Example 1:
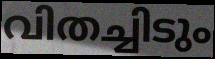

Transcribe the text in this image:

വിതച്ചിടും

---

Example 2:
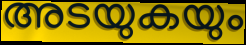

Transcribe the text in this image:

അടയുകയും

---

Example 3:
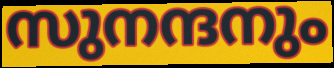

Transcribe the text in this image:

സുനന്ദനും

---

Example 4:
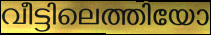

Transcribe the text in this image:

വീട്ടിലെത്തിയോ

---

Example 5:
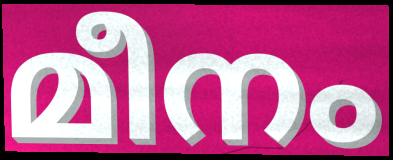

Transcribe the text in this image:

മീനം